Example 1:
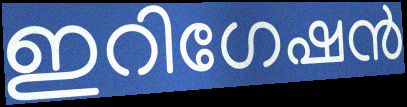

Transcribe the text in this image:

ഇറിഗേഷൻ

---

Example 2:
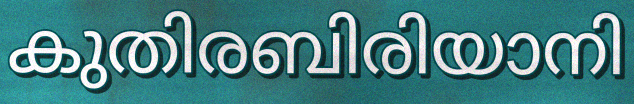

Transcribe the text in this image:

കുതിരബിരിയാനി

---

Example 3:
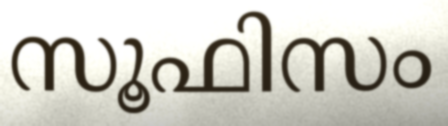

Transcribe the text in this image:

സൂഫിസം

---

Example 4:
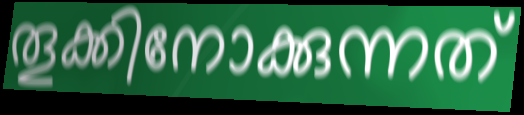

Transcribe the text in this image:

തൂക്കിനോക്കുന്നത്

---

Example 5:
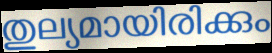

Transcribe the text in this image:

തുല്യമായിരിക്കും